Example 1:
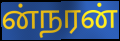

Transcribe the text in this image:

ன்நரன்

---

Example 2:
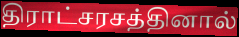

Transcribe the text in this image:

திராட்சரசத்தினால்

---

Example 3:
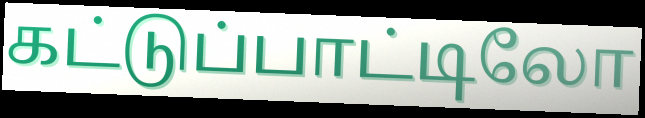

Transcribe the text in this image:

கட்டுப்பாட்டிலோ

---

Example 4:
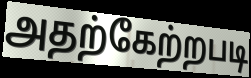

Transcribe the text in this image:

அதற்கேற்றபடி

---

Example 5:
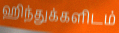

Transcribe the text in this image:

ஹிந்துக்களிடம்